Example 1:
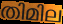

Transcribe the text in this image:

തിമില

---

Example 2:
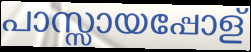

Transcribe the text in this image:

പാസ്സായപ്പോള്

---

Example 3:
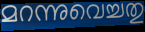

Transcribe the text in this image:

മറന്നുവെച്ചതു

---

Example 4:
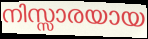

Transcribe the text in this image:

നിസ്സാരയായ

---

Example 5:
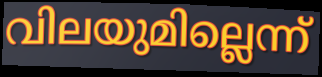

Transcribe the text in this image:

വിലയുമില്ലെന്ന്